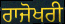
ਰਾਜੋਖਰੀ